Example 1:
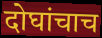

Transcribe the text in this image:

दोघांचाच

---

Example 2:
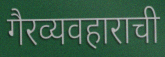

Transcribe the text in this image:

गैरव्यवहाराची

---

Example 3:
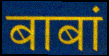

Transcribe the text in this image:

बाबां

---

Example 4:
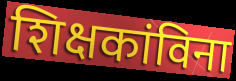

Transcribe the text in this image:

शिक्षकांविना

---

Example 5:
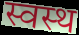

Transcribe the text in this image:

स्वस्थ